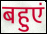
बहुएं